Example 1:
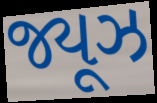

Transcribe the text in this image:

જ્યૂઝ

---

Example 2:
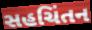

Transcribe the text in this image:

સહચિંતન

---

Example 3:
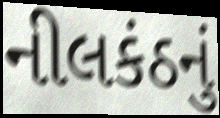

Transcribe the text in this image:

નીલકંઠનું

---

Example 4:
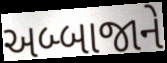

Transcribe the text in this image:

અબ્બાજાને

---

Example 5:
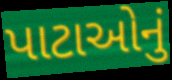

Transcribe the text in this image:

પાટાઓનું